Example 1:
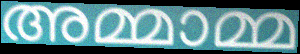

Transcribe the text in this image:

അമ്മാമ്മ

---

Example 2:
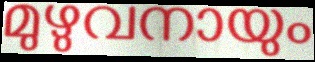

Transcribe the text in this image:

മുഴുവനായും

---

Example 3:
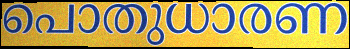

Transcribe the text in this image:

പൊതുധാരണ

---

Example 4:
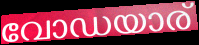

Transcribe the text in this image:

വോഡയാര്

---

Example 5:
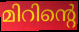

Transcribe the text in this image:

മിറിന്റെ